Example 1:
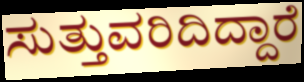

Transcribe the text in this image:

ಸುತ್ತುವರಿದಿದ್ದಾರೆ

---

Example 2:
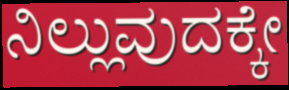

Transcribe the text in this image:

ನಿಲ್ಲುವುದಕ್ಕೇ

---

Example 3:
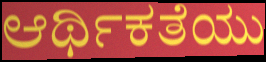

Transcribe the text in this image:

ಆರ್ಥಿಕತೆಯು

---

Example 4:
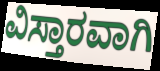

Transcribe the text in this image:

ವಿಸ್ತಾರವಾಗಿ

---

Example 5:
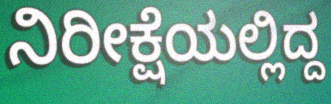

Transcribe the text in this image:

ನಿರೀಕ್ಷೆಯಲ್ಲಿದ್ದ